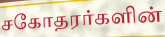
சகோதரர்களின்